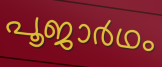
പൂജാർഥം